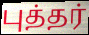
புத்தர்